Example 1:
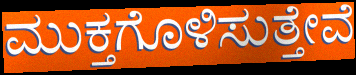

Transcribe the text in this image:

ಮುಕ್ತಗೊಳಿಸುತ್ತೇವೆ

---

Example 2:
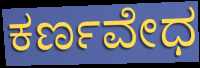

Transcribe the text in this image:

ಕರ್ಣವೇಧ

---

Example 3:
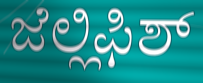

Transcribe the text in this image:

ಜೆಲ್ಲಿಫಿಶ್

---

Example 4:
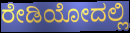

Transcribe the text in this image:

ರೇಡಿಯೋದಲ್ಲಿ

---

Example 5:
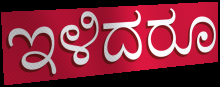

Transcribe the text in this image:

ಇಳಿದರೂ